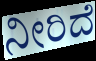
ನೀರಿದೆ